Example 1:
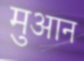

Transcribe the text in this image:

मुआन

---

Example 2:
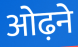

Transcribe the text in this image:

ओढ़ने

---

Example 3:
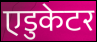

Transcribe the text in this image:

एडुकेटर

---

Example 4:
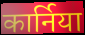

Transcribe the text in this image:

कार्निया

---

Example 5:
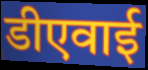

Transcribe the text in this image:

डीएवाई